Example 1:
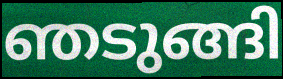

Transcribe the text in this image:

ഞടുങ്ങി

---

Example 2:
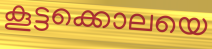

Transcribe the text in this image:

കൂട്ടക്കൊലയെ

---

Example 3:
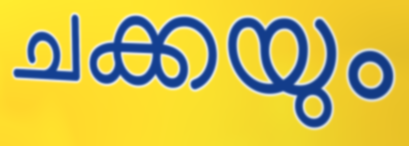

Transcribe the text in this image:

ചക്കയും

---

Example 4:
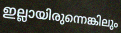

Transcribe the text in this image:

ഇല്ലായിരുന്നെങ്കിലും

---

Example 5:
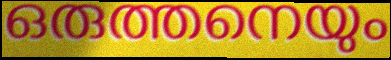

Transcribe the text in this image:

ഒരുത്തനെയും